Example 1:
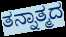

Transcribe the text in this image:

ತನ್ನಾತ್ಮದ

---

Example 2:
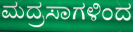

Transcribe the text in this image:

ಮದ್ರಸಾಗಳಿಂದ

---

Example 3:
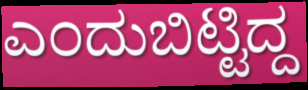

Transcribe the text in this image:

ಎಂದುಬಿಟ್ಟಿದ್ದ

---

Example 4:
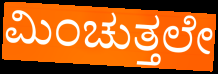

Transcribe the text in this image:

ಮಿಂಚುತ್ತಲೇ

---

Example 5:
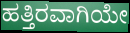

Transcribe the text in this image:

ಹತ್ತಿರವಾಗಿಯೇ